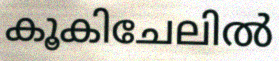
കൂകിചേലിൽ